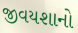
જીવયશાનો